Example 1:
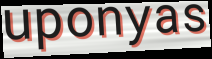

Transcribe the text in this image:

uponyas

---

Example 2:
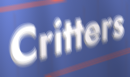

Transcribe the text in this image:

Critters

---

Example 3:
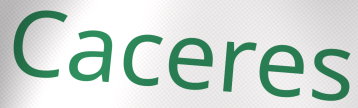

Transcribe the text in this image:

Caceres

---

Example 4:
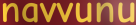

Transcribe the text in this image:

navvunu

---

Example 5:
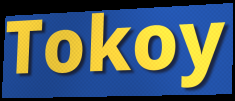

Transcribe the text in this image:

Tokoy